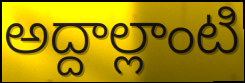
అద్దాల్లాంటి